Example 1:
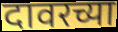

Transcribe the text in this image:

दावरच्या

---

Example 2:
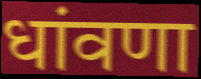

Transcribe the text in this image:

धांवणा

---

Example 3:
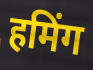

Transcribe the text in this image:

हमिंग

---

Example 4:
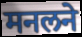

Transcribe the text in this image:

मनलने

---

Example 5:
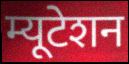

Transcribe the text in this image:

म्यूटेशन